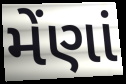
મેંણાં